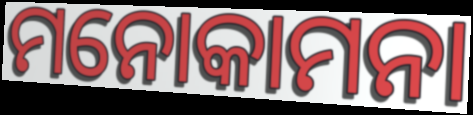
ମନୋକାମନା